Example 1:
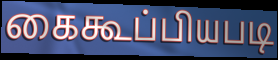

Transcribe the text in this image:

கைகூப்பியபடி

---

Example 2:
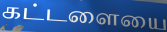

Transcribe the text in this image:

கட்டளையை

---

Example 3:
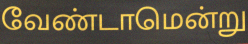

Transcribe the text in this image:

வேண்டாமென்று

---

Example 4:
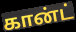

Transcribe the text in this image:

கான்ட்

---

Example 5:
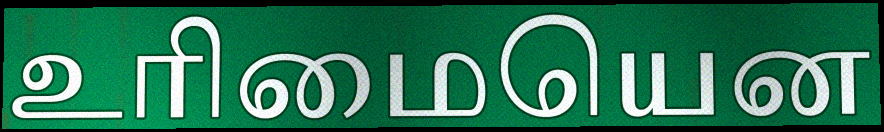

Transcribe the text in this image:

உரிமையென